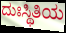
ದುಃಸ್ಥಿತಿಯ